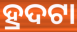
ହ୍ରଦଟା